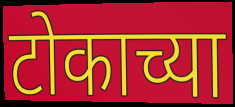
टोकाच्या